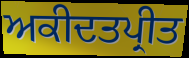
ਅਕੀਦਤਪ੍ਰੀਤ